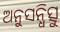
ଅନୁସନ୍ଧିତ୍ସୁ